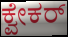
ಕ್ವೇಕರ್